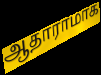
ஆதாராமாக